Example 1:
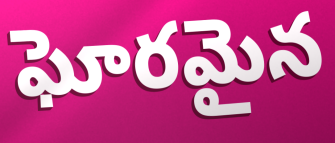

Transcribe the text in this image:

ఘోరమైన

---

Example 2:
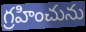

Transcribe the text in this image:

గ్రహించును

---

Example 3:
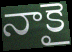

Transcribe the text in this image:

నాకై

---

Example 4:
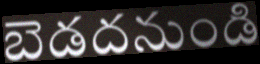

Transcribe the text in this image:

బెడదనుండి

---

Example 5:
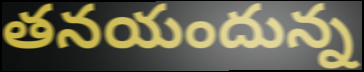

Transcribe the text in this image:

తనయందున్న